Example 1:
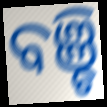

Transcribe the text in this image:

ବଞ୍ଚି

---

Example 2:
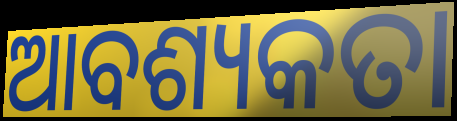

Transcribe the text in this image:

ଆବଶ୍ୟକତା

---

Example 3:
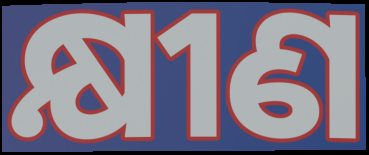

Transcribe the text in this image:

କ୍ଷୀଣ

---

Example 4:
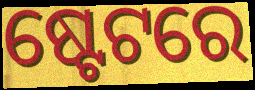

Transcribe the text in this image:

ଷ୍ଟେଟରେ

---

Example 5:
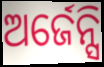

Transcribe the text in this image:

ଅର୍ଜେନ୍ସି